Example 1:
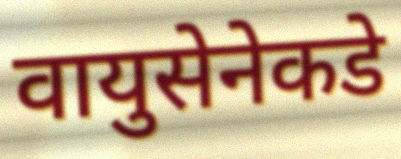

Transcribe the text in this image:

वायुसेनेकडे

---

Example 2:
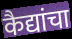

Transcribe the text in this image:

कैद्यांचा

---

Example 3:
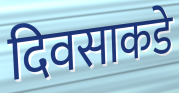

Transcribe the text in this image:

दिवसाकडे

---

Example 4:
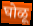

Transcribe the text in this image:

घोळू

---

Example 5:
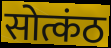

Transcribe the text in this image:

सोत्कंठ